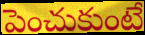
పెంచుకుంటే